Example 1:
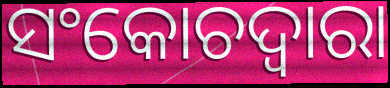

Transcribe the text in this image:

ସଂକୋଚଦ୍ୱାରା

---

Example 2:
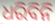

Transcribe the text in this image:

ଧରିବିନି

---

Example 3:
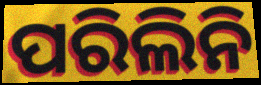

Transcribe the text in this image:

ପରିଲିନି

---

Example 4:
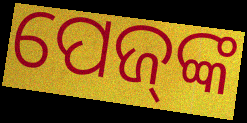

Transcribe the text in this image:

ପେଜ୍‌ଙ୍କ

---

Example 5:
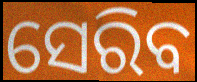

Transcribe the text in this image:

ସେରିବ